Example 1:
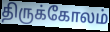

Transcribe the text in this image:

திருக்கோலம்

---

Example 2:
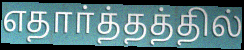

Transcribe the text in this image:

எதார்த்தத்தில்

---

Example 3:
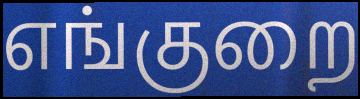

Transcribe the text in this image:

எங்குறை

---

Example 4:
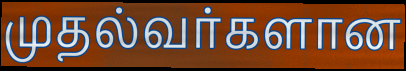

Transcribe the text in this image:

முதல்வர்களான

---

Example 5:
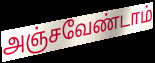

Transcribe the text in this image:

அஞ்சவேண்டாம்